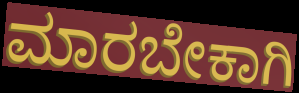
ಮಾರಬೇಕಾಗಿ